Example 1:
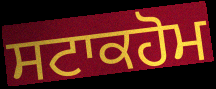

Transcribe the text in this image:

ਸਟਾਕਹੋਮ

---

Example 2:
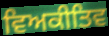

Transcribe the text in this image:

ਵਿਅਕੀਤਿਵ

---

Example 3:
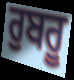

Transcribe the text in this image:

ਰੁਬਰੂ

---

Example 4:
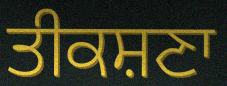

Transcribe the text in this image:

ਤੀਕਸ਼ਣਾ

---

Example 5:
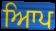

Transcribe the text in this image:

ਆਿਪ